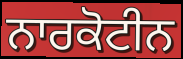
ਨਾਰਕੋਟੀਨ